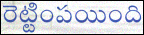
రెట్టింపయింది